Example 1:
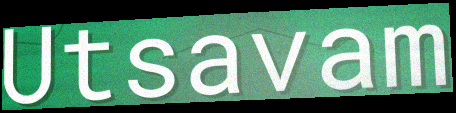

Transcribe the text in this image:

Utsavam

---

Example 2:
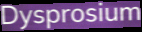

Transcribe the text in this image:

Dysprosium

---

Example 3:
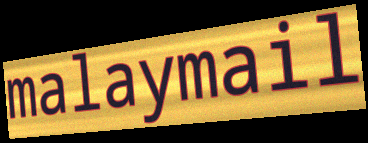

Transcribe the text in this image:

malaymail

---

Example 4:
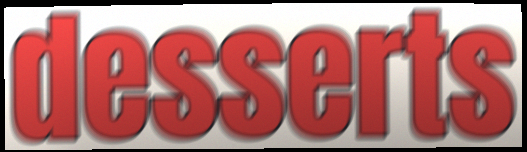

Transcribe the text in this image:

desserts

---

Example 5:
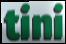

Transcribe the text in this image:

tini